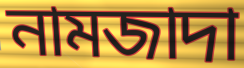
নামজাদা